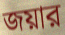
জয়ার